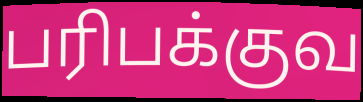
பரிபக்குவ